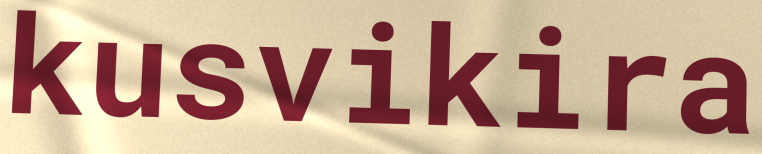
kusvikira